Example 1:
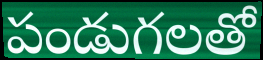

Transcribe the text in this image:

పండుగలతో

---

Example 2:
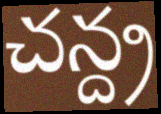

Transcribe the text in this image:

చన్ద్ర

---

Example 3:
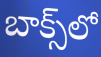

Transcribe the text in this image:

బాక్స్‌లో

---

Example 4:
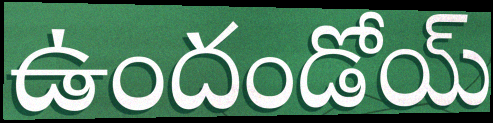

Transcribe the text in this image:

ఉందండోయ్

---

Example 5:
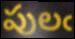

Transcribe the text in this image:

పులఁ